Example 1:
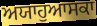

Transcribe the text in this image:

ਅਯਾਹੁਆਸਕਾ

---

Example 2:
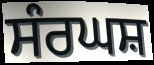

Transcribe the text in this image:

ਸੰਰਘਸ਼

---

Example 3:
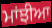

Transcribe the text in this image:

ਮਾਂਝੀਆ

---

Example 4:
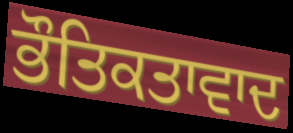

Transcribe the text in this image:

ਭੌਤਿਕਤਾਵਾਦ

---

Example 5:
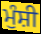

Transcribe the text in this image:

ਮੁੰਸ਼ੀ